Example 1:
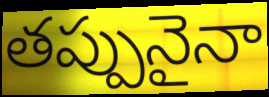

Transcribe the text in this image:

తప్పునైనా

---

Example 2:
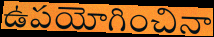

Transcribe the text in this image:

ఉపయోగించినా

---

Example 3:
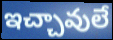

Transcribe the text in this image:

ఇచ్చావులే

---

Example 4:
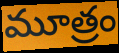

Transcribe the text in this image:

మూత్రం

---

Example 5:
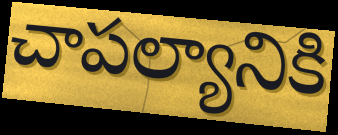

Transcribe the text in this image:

చాపల్యానికి